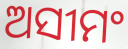
ଅସୀମଂ